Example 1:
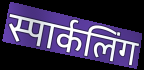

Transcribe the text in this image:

स्पार्कलिंग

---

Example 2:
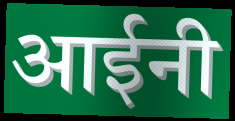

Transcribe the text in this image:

आईनी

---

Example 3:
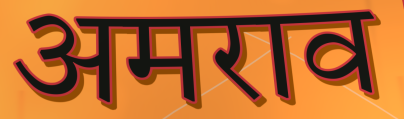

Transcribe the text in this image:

अमराव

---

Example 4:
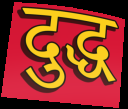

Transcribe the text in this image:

दुद्ध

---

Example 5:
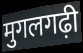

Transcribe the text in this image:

मुगलगढ़ी